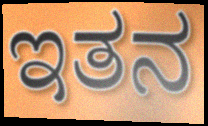
ಇತನ